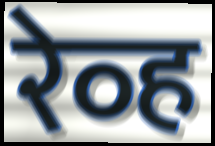
रेव्ह